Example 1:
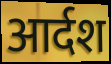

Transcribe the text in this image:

आर्दश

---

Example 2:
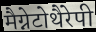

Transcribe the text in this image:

मैग्नेटोथैरेपी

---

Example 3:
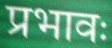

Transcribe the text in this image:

प्रभावः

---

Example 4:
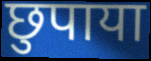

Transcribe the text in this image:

छुपाया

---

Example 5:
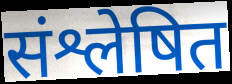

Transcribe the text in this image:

संश्लेषित